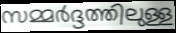
സമ്മർദ്ദത്തിലുള്ള